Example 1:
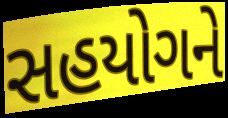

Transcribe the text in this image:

સહયોગને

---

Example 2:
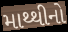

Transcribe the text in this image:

માથ્થીનો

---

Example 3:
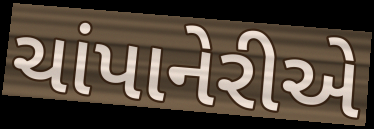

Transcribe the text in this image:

ચાંપાનેરીએ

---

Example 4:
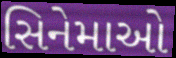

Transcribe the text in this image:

સિનેમાઓ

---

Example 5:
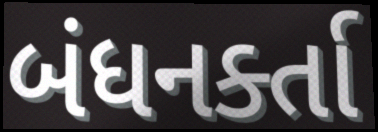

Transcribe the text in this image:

બંધનર્ક્તા